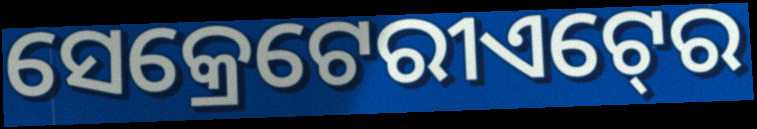
ସେକ୍ରେଟେରୀଏଟ୍‍ରେ